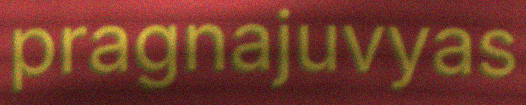
pragnajuvyas